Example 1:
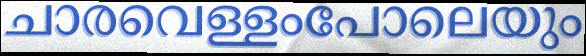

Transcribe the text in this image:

ചാരവെള്ളംപോലെയും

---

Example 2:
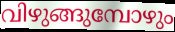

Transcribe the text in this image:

വിഴുങ്ങുമ്പോഴും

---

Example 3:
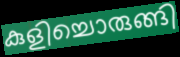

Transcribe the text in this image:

കുളിച്ചൊരുങ്ങി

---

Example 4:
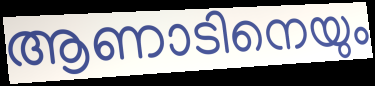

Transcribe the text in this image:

ആണാടിനെയും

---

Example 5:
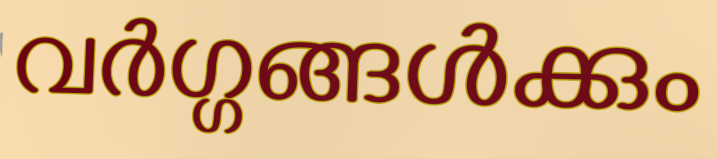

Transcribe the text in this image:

വർഗ്ഗങ്ങൾക്കും